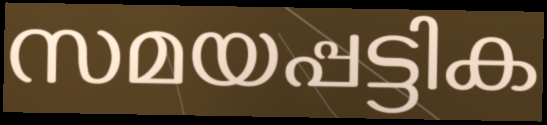
സമയപ്പട്ടിക